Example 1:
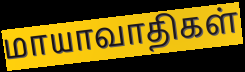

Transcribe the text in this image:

மாயாவாதிகள்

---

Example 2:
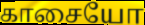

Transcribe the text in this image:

காசையோ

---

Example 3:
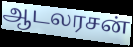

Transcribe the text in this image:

ஆடலரசன்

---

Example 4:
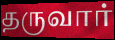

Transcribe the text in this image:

தருவார்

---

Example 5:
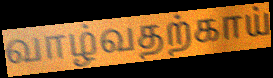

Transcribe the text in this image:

வாழ்வதற்காய்